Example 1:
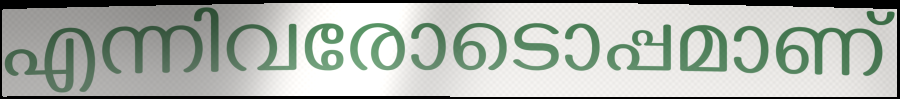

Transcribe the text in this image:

എന്നിവരോടൊപ്പമാണ്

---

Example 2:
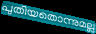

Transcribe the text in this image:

പുതിയതൊന്നുമല്ല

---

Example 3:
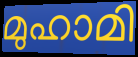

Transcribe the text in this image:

മുഹാമി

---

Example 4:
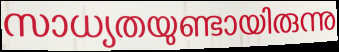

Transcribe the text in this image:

സാധ്യതയുണ്ടായിരുന്നു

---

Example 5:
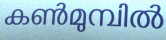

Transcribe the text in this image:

കൺമുമ്പിൽ